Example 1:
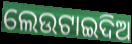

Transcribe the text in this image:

ଲେଉଟାଇଦିଅ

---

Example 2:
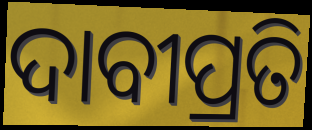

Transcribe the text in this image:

ଦାବୀପ୍ରତି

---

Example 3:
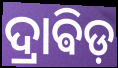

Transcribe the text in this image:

ଦ୍ରାଵିଡ଼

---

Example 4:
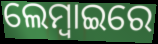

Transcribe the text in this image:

ଲେମ୍ବାଇରେ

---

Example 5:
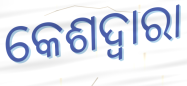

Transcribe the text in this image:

କେଶଦ୍ବାରା